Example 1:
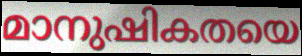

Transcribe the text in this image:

മാനുഷികതയെ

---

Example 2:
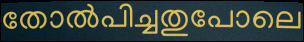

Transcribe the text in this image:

തോൽപിച്ചതുപോലെ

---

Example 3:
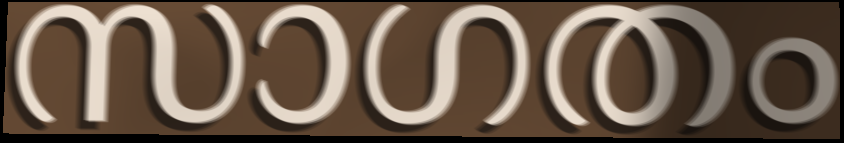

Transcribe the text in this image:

സാഗതം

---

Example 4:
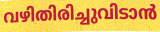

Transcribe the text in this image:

വഴിതിരിച്ചുവിടാൻ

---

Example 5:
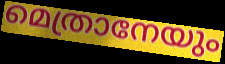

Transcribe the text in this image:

മെത്രാനേയും